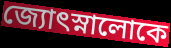
জ্যোৎস্নালোকে